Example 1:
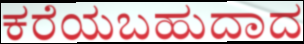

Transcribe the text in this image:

ಕರೆಯಬಹುದಾದ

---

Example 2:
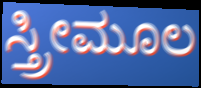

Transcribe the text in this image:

ಸ್ತ್ರೀಮೂಲ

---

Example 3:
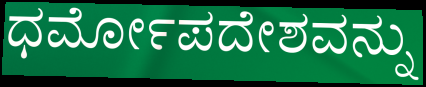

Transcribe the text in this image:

ಧರ್ಮೋಪದೇಶವನ್ನು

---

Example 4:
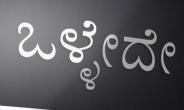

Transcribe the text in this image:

ಒಳ್ಳೇದೇ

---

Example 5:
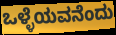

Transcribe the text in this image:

ಒಳ್ಳೆಯವನೆಂದು